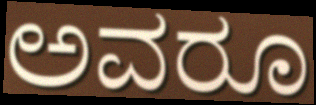
ಅವರೂ